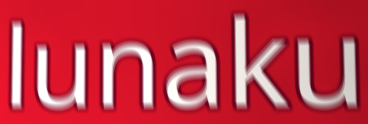
lunaku